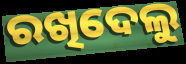
ରଖିଦେଲୁ